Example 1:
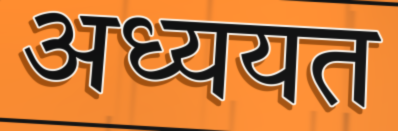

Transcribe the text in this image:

अध्ययत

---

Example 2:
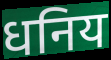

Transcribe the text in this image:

धनिय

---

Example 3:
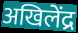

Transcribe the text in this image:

अखिलेंद्र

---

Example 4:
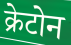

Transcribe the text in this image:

क्रेटोन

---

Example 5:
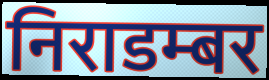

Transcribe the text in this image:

निराडम्बर